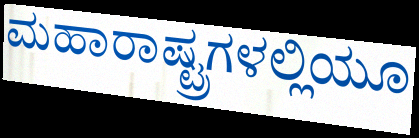
ಮಹಾರಾಷ್ಟ್ರಗಳಲ್ಲಿಯೂ